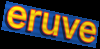
eruve